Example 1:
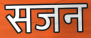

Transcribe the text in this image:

सजन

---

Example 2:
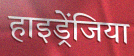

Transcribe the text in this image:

हाइड्रेंजिया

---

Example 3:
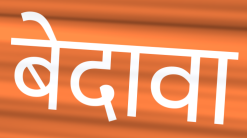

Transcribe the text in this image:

बेदावा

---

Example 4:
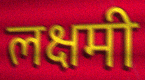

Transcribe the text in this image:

लक्षमी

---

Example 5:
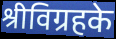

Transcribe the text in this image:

श्रीविग्रहके